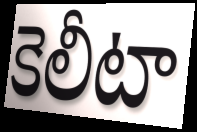
కెలీటా